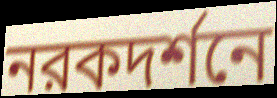
নরকদর্শনে